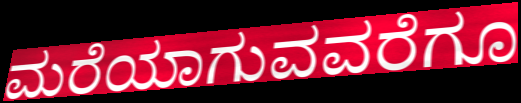
ಮರೆಯಾಗುವವರೆಗೂ